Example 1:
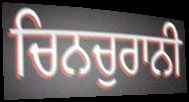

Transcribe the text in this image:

ਚਿਨਚੁਰਾਨੀ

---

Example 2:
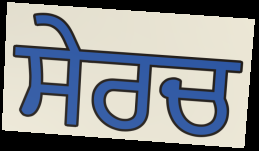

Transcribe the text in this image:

ਸੇਰਚ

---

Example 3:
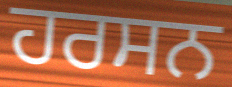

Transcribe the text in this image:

ਹਰਸਨ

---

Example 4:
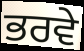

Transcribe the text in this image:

ਭਰਵੇ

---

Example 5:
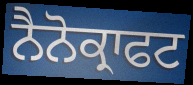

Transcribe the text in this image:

ਨੈਨੋਕ੍ਰਾਫਟ